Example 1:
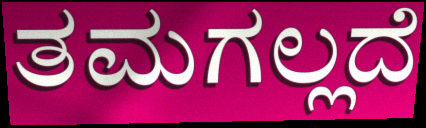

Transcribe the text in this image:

ತಮಗಲ್ಲದೆ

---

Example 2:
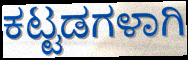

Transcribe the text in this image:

ಕಟ್ಟಡಗಳಾಗಿ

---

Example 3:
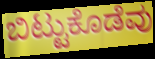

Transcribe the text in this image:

ಬಿಟ್ಟುಕೊಡೆವು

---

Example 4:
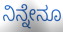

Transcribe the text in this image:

ನಿನ್ನೇನೂ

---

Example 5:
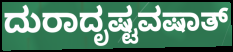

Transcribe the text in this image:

ದುರಾದೃಷ್ಟವಷಾತ್